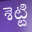
శెట్టి